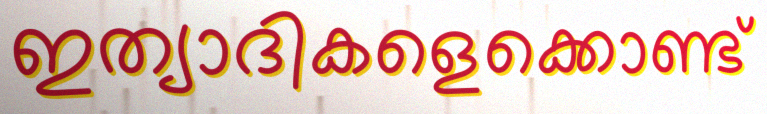
ഇത്യാദികളെക്കൊണ്ട്